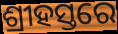
ଶ୍ରୀହସ୍ତରେ